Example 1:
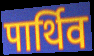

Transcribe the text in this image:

पार्थिव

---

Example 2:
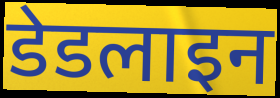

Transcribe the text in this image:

डेडलाइन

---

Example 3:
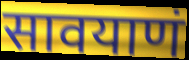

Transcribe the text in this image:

सावयाणं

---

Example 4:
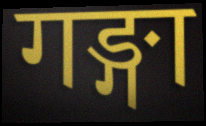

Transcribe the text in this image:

गङ्गा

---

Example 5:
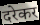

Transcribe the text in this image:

दरेकर